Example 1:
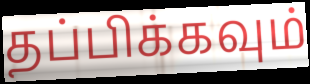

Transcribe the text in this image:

தப்பிக்கவும்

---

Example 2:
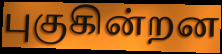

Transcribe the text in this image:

புகுகின்றன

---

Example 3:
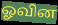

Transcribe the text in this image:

ஓவின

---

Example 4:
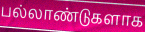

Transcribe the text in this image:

பல்லாண்டுகளாக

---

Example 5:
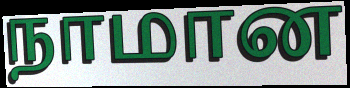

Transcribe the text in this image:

நாமான